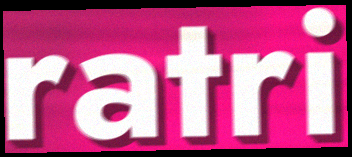
ratri